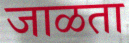
जाळता